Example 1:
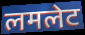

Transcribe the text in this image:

लमलेट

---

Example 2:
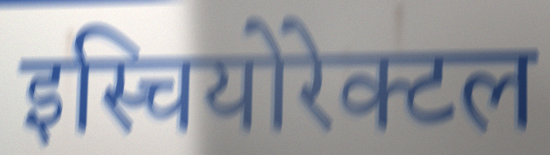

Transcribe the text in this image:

इस्चियोरेक्टल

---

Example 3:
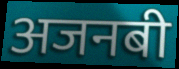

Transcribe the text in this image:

अजनबी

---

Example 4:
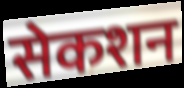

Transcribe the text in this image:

सेकशन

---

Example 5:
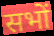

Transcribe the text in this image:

सभों